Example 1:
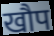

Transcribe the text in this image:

खौप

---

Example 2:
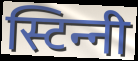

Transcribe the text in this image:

स्टिन्नी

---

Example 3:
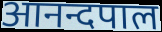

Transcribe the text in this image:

आनन्दपाल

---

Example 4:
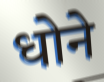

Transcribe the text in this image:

धोने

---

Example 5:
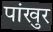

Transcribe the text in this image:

पांखुर